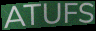
ATUFS